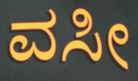
ವಸೀ